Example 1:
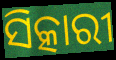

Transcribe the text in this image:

ସିତ୍କାରୀ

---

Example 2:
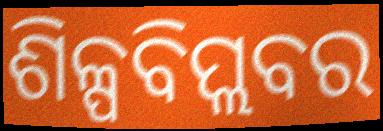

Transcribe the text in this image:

ଶିଳ୍ପବିପ୍ଲବର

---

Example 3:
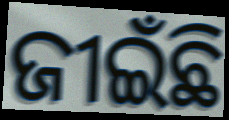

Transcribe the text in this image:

ଜୀଇଁଛି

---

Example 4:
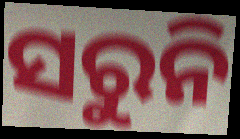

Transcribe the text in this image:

ସରୁନି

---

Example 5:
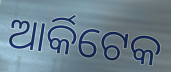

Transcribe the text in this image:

ଆର୍କିଟେକ